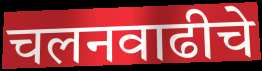
चलनवाढीचे